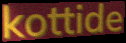
kottide